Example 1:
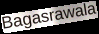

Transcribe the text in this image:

Bagasrawala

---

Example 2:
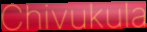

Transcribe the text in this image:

Chivukula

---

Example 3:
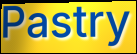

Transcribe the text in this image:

Pastry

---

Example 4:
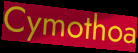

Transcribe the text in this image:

Cymothoa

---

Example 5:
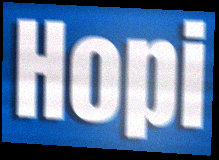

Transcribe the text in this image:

Hopi